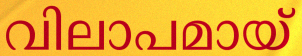
വിലാപമായ്